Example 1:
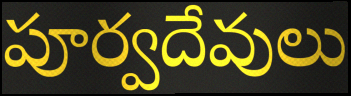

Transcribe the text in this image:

పూర్వదేవులు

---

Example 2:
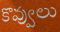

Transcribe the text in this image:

కొవ్వులు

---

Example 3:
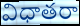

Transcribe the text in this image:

విధాతరా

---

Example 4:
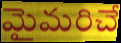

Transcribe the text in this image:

మైమరిచే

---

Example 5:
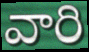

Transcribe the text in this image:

వారి